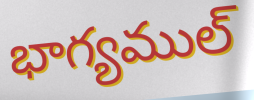
భాగ్యముల్